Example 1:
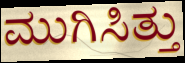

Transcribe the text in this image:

ಮುಗಿಸಿತ್ತು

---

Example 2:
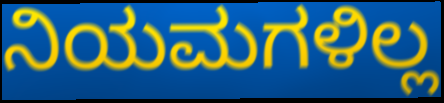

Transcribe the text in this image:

ನಿಯಮಗಳಿಲ್ಲ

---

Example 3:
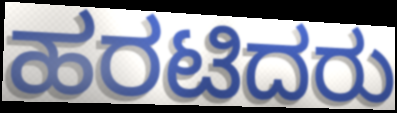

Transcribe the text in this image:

ಹರಟಿದರು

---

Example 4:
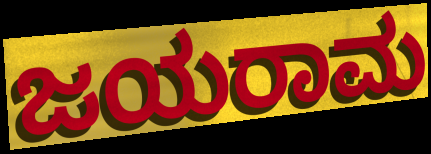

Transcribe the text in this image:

ಜಯರಾಮ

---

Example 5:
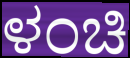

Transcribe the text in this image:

ಳಂಚಿ